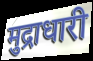
मुद्राधारी